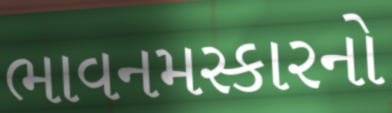
ભાવનમસ્કારનો